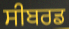
ਸੀਬਰਡ